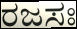
ರಜಸಃ